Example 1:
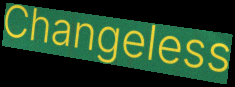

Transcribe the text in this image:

Changeless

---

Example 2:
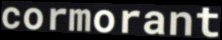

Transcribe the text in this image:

cormorant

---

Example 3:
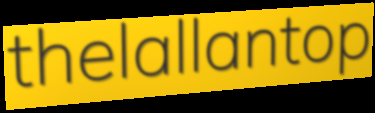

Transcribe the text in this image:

thelallantop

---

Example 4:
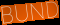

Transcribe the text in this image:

BUND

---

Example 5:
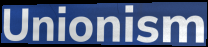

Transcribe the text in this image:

Unionism